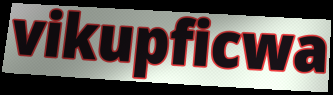
vikupficwa